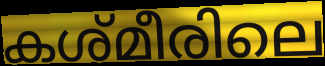
കശ്മീരിലെ